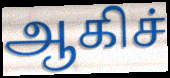
ஆகிச்